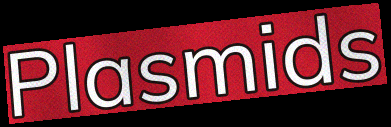
Plasmids